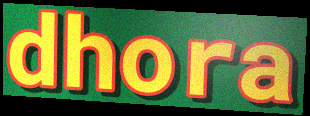
dhora